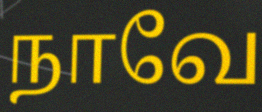
நாவே